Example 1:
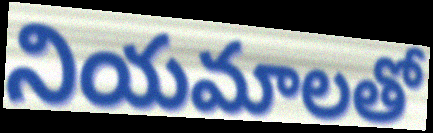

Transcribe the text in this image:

నియమాలతో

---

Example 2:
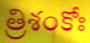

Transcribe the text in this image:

త్రిశంకోః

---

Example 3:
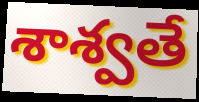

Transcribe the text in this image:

శాశ్వతే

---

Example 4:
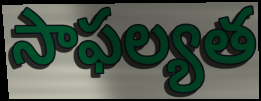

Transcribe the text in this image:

సాఫల్యత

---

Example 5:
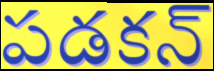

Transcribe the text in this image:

పడకన్